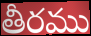
తీరము